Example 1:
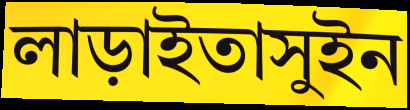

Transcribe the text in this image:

লাড়াইতাসুইন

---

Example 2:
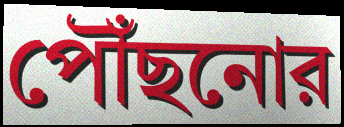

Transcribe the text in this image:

পৌঁছনোর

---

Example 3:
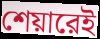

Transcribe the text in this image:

শেয়ারেই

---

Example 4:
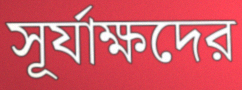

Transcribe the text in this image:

সূর্যাক্ষদের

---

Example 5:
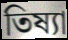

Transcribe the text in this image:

তিষ্যা